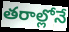
తరాల్లోనే